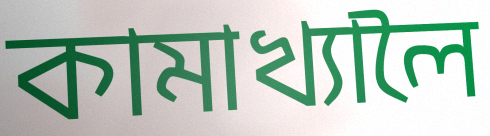
কামাখ্যালৈ